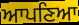
ਆਪਣਿਆ